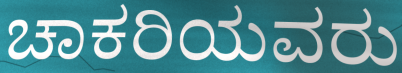
ಚಾಕರಿಯವರು